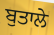
ਬੁਤਾਲੇ